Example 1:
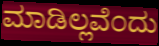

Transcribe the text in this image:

ಮಾಡಿಲ್ಲವೆಂದು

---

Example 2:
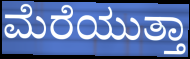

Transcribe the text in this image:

ಮೆರೆಯುತ್ತಾ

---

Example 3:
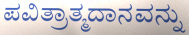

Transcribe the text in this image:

ಪವಿತ್ರಾತ್ಮದಾನವನ್ನು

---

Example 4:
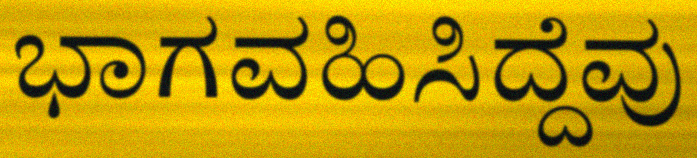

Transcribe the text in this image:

ಭಾಗವಹಿಸಿದ್ದೆವು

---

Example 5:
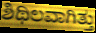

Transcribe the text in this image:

ಶಿಥಿಲವಾಗಿತ್ತು